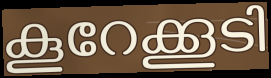
കൂറേക്കൂടി